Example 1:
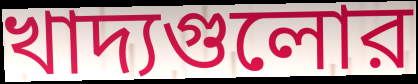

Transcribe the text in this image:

খাদ্যগুলোর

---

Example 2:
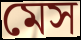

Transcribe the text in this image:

মেস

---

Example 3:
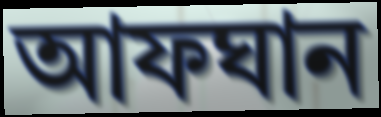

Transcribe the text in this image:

আফঘান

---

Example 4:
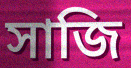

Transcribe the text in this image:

সাজি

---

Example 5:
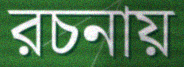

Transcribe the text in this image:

রচনায়